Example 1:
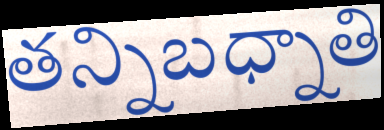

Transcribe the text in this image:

తన్నిబధ్నాతి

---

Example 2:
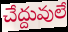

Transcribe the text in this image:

చేద్దువులే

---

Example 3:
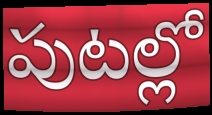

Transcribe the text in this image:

పుటల్లో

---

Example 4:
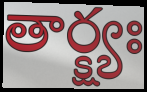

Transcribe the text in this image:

తార్క్ష్యః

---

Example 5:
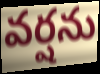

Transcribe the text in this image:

వర్షను